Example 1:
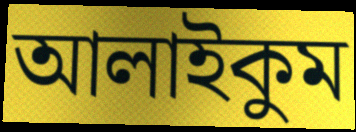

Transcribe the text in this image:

আলাইকুম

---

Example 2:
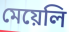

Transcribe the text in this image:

মেয়েলি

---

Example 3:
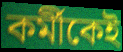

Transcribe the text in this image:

কর্মীকেই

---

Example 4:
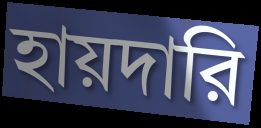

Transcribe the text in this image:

হায়দারি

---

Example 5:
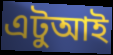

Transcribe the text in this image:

এটুআই